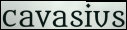
cavasius